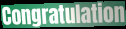
Congratulation